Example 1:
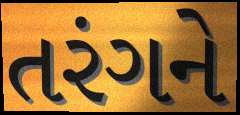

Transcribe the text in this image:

તરંગને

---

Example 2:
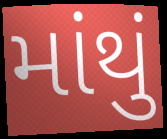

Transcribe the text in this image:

માંથું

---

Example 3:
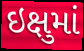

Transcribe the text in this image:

ઇક્ષુમાં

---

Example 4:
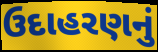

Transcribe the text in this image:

ઉદાહરણનું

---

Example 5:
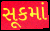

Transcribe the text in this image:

સૂકમાં